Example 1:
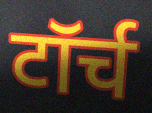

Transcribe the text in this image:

टॉर्च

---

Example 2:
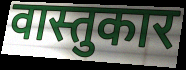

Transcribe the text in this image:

वास्तुकार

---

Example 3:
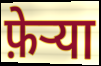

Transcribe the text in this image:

फ़ेर्‍या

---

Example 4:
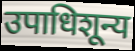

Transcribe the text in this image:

उपाधिशून्य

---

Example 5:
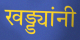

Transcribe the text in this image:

खड्ड्यांनी